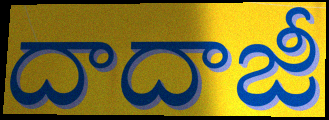
దాదాజీ